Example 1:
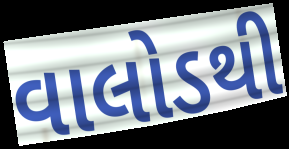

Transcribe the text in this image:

વાલોડથી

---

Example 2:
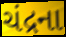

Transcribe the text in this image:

ચંદ્રના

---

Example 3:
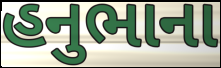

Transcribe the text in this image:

હનુભાના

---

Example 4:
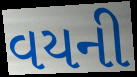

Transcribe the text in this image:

વયની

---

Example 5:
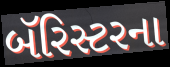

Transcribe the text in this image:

બૅરિસ્ટરના